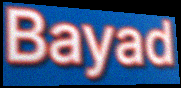
Bayad